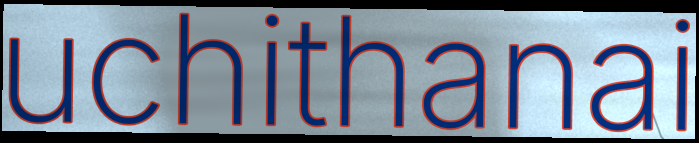
uchithanai